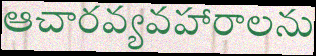
ఆచారవ్యవహారాలను